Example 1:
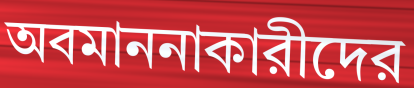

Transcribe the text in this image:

অবমাননাকারীদের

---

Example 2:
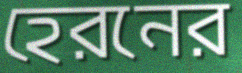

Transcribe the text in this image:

হেরনের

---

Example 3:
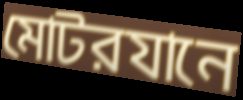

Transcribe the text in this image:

মোটরযানে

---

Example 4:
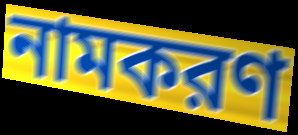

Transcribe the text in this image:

নামকরণ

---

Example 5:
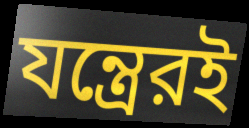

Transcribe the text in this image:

যন্ত্রেরই